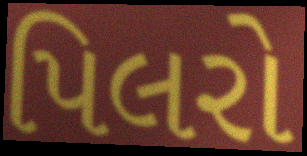
પિલરો